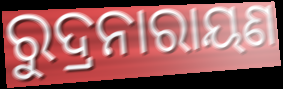
ରୁଦ୍ରନାରାୟଣ